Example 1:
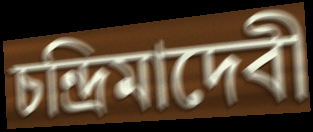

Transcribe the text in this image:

চন্দ্রিমাদেবী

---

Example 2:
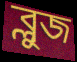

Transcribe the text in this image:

ব্লুজ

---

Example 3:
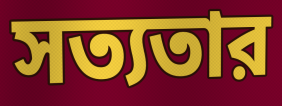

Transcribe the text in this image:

সত্যতার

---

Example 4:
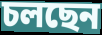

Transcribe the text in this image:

চলছেন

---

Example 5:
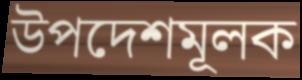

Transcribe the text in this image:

উপদেশমূলক